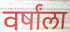
वर्षांला